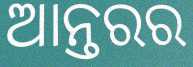
ଆନ୍ତରର